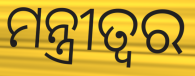
ମନ୍ତ୍ରୀତ୍ୱର